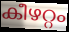
കീഴറ്റം